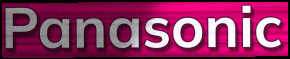
Panasonic